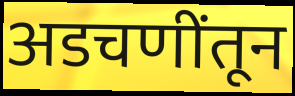
अडचणींतून